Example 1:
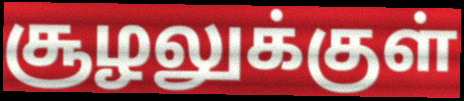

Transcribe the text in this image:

சூழலுக்குள்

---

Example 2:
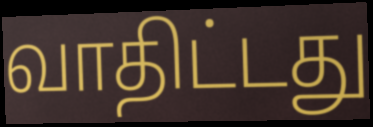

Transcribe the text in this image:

வாதிட்டது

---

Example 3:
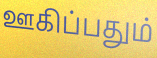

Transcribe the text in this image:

ஊகிப்பதும்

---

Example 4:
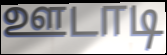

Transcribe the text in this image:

ஊடாடி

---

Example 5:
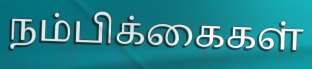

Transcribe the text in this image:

நம்பிக்கைகள்